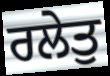
ਰਲੇਤੁ